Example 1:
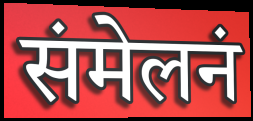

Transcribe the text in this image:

संमेलनं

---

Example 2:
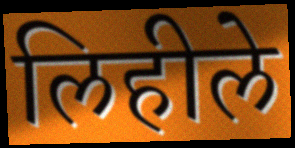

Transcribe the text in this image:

लिहीले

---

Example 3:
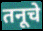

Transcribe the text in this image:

तनूचे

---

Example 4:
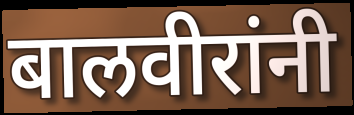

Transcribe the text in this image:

बालवीरांनी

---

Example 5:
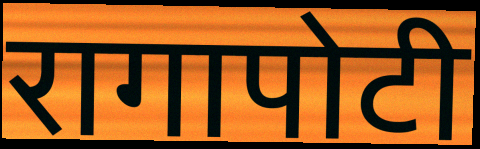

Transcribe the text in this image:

रागापोटी